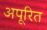
अपूरित